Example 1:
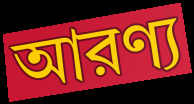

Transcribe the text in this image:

আরণ্য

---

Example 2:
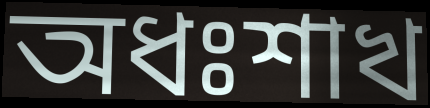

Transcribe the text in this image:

অধঃশাখ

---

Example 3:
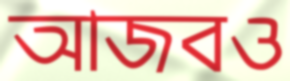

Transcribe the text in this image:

আজবও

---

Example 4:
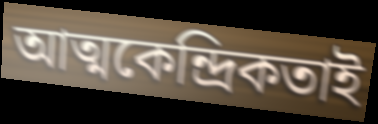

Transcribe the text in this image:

আত্মকেন্দ্রিকতাই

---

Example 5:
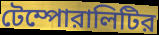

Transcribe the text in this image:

টেম্পোরালিটির